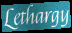
Lethargy